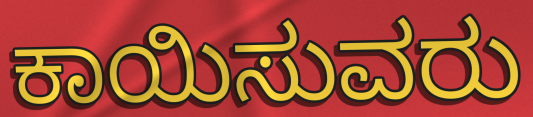
ಕಾಯಿಸುವರು